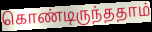
கொண்டிருந்ததாம்